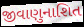
જીવાણુનાશિત